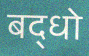
बद्धो